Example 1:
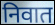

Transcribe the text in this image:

निवात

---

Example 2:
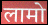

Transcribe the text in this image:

लामो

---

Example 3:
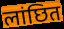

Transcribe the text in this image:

लांछित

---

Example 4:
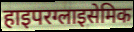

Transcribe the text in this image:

हाइपरग्लाइसेमिक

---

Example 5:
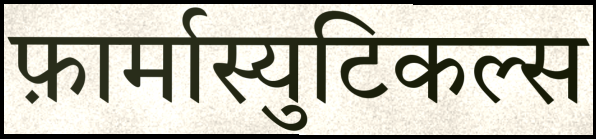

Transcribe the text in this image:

फ़ार्मास्युटिकल्स